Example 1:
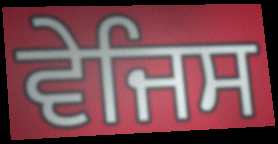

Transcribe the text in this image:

ਵੇਜਿਸ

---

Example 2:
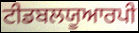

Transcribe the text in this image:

ਟੀਡਬਲਯੂਆਰਪੀ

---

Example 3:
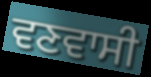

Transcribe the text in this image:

ਵਣਵਾਸੀ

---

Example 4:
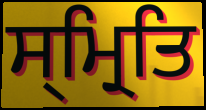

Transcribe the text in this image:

ਸ੍ਮ੍ਰਿਤਿ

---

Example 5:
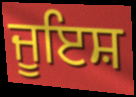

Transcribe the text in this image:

ਜੂਇਸ਼